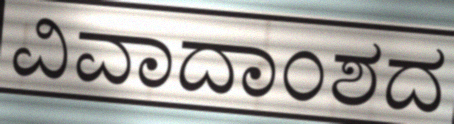
ವಿವಾದಾಂಶದ